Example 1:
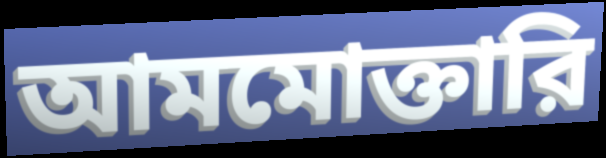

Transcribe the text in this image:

আমমোক্তারি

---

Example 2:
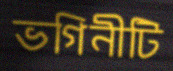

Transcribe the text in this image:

ভগিনীটি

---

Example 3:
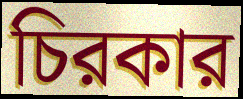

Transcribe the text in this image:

চিরকার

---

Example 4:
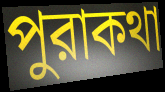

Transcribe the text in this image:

পুরাকথা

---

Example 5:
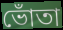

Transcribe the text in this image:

ভোঁতা